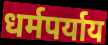
धर्मपर्याय